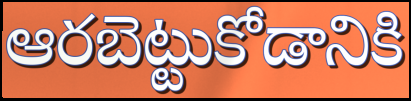
ఆరబెట్టుకోడానికి